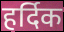
हर्दिक